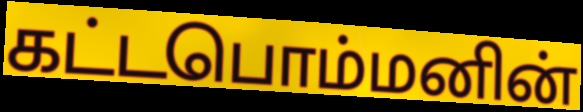
கட்டபொம்மனின்